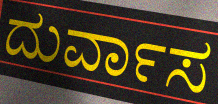
ದುರ್ವಾಸ